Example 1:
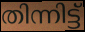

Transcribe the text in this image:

തിന്നിട്ട്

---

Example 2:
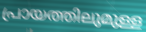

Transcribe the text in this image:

പ്രായത്തിലുമുള്ള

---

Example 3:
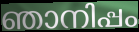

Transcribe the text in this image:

ഞാനിപ്പം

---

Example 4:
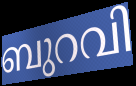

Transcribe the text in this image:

ബുറവി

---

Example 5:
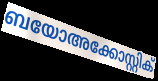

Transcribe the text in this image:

ബയോഅക്കോസ്റ്റിക്